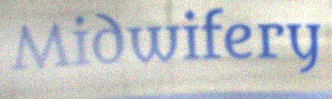
Midwifery